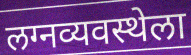
लग्नव्यवस्थेला